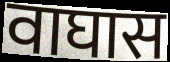
वाघास